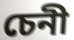
চেনী